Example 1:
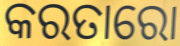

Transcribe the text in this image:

କରତାରୋ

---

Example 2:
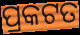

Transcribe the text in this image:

ପ୍ରକଟତ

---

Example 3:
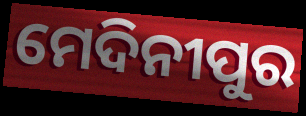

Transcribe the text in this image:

ମେଦିନୀପୁର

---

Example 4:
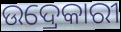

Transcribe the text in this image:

ଉଦ୍ରେକାରୀ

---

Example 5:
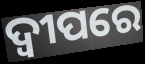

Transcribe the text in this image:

ଦ୍ୱୀପରେ